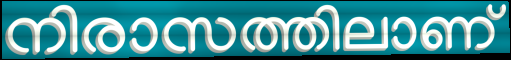
നിരാസത്തിലാണ്